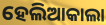
ହେଲିଆକାଲା